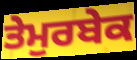
ਤੇਮੁਰਬੇਕ